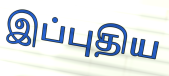
இப்புதிய